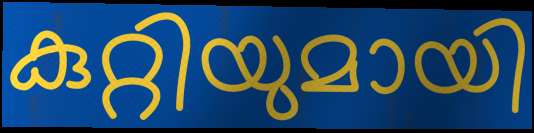
കുറ്റിയുമായി